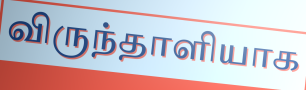
விருந்தாளியாக